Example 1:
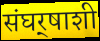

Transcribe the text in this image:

संघर्षाशी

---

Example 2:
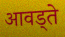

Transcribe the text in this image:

आवड्ते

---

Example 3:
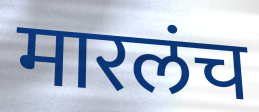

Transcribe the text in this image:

मारलंच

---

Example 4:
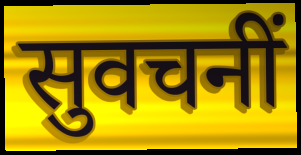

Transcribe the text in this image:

सुवचनीं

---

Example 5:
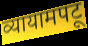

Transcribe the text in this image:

व्यायामपटू